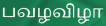
பவழவிழா